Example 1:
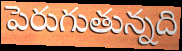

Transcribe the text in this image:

పెరుగుతున్నది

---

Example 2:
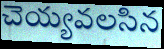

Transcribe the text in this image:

చెయ్యవలసిన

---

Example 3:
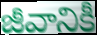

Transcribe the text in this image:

జీవానికీ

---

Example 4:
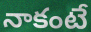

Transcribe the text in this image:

నాకంటే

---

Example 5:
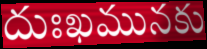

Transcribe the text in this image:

దుఃఖమునకు